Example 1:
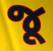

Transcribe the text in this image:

જૂ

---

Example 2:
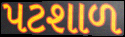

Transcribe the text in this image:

પટશાળ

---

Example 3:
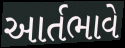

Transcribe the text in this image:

આર્તભાવે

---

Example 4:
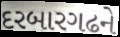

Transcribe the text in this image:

દરબારગઢને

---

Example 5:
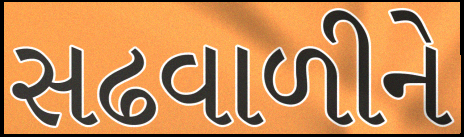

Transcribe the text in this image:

સઢવાળીને